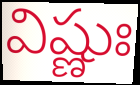
విష్ణుః